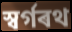
স্বৰ্গৰথ